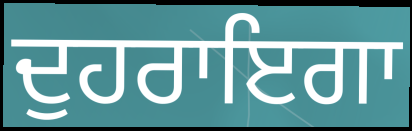
ਦੁਹਰਾਇਗਾ